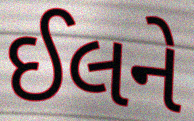
ઈલને